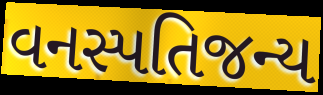
વનસ્પતિજન્ય